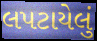
લપટાયેલું